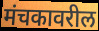
मंचकावरील